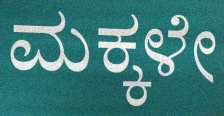
ಮಕ್ಕಳೇ